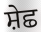
ਸ਼ੇਛ